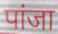
पांजा